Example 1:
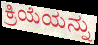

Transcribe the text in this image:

ಕ್ರಿಯೆಯನ್ನು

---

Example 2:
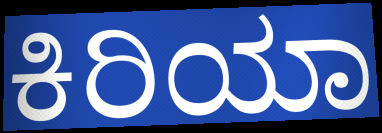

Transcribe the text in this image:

ಕಿರಿಯಾ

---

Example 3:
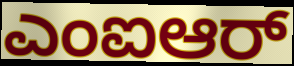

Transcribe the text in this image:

ಎಂಐಆರ್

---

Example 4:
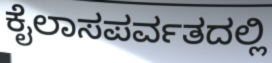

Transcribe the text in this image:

ಕೈಲಾಸಪರ್ವತದಲ್ಲಿ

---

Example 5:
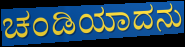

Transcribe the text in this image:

ಚಂಡಿಯಾದನು